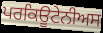
ਪਰਕਿਊਟੇਨੀਅਸ